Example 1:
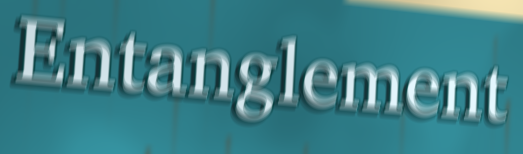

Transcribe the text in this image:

Entanglement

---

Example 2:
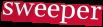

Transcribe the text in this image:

sweeper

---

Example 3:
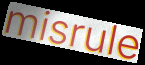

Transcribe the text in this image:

misrule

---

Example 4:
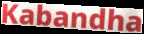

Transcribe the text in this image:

Kabandha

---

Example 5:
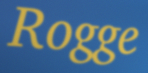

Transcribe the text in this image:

Rogge